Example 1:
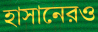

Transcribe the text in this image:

হাসানেরও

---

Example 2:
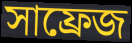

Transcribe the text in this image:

সাফ্রেজ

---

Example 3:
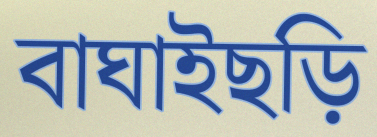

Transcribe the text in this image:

বাঘাইছড়ি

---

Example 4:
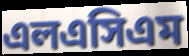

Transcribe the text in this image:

এলএসিএম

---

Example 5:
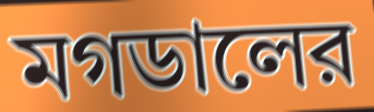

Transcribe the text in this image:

মগডালের